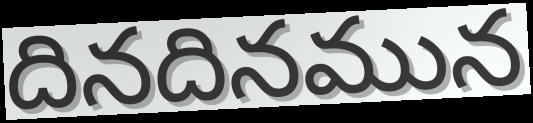
దినదినమున